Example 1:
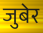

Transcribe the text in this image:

जुबेर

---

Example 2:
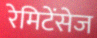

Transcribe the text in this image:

रेमिटेंसेज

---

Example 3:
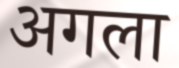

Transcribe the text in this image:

अगला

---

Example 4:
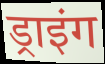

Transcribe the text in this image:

ड्राइंग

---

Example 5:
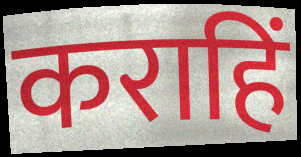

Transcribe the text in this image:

कराहिं